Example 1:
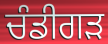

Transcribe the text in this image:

ਚੰਡੀਗੜ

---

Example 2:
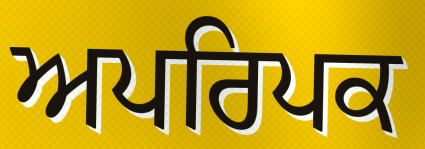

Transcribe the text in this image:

ਅਪਰਿਪਕ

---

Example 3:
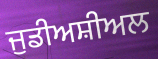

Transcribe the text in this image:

ਜੁਡੀਅਸ਼ੀਅਲ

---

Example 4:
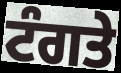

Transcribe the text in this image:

ਟੰਗਤੇ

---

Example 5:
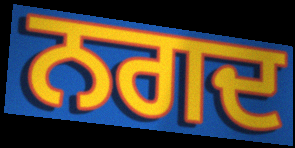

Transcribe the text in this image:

ਨਗਦ